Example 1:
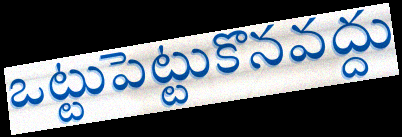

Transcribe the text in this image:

ఒట్టుపెట్టుకొనవద్దు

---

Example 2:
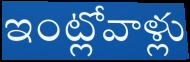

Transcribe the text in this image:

ఇంట్లోవాళ్లు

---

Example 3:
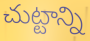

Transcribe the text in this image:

చుట్టాన్ని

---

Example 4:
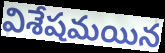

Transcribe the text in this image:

విశేషమయిన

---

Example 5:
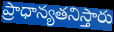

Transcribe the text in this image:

ప్రాధాన్యతనిస్తారు